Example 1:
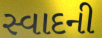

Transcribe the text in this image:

સ્વાદની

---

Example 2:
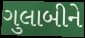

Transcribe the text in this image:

ગુલાબીને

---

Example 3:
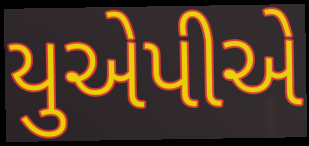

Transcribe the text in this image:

યુએપીએ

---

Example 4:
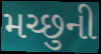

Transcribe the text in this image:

મચ્છુની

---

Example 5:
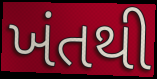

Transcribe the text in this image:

ખંતથી